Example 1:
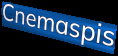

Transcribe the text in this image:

Cnemaspis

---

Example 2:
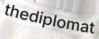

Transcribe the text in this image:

thediplomat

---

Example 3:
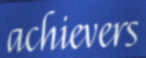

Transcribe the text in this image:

achievers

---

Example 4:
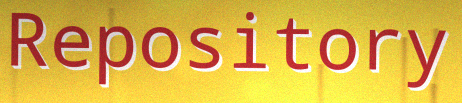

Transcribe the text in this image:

Repository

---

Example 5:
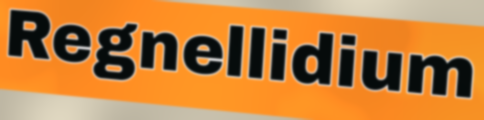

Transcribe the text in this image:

Regnellidium